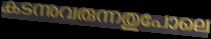
കടന്നുവരുന്നതുപോലെ